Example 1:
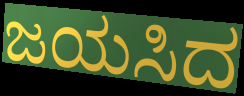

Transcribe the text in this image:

ಜಯಸಿದ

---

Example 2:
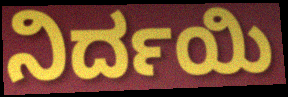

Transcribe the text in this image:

ನಿರ್ದಯಿ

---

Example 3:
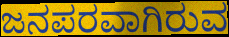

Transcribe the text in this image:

ಜನಪರವಾಗಿರುವ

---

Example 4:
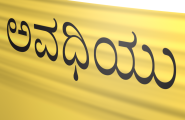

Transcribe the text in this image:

ಅವಧಿಯು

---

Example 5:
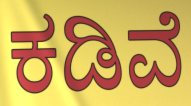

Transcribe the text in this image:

ಕಡಿವೆ